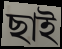
ছাই